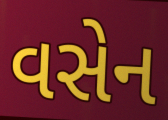
વસેન